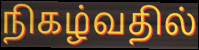
நிகழ்வதில்